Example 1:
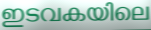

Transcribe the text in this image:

ഇടവകയിലെ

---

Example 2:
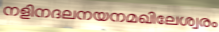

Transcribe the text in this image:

നളിനദലനയനമഖിലേശ്വരം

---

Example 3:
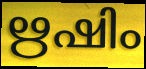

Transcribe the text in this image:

ഋഷിം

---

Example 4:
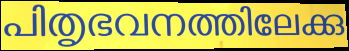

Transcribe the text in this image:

പിതൃഭവനത്തിലേക്കു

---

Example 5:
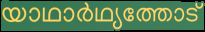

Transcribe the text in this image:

യാഥാർഥ്യത്തോട്